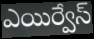
ఎయిర్వేస్